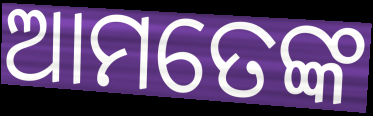
ଆମତେଙ୍କ